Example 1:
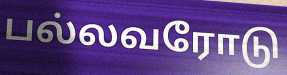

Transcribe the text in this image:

பல்லவரோடு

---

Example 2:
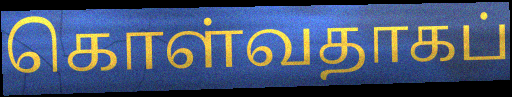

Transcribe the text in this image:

கொள்வதாகப்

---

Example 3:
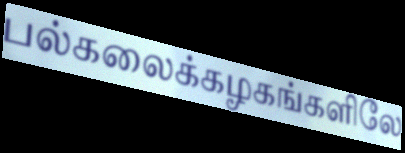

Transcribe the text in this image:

பல்கலைக்கழகங்களிலே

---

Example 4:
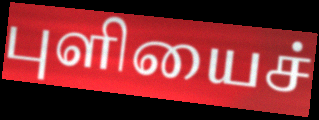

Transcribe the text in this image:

புளியைச்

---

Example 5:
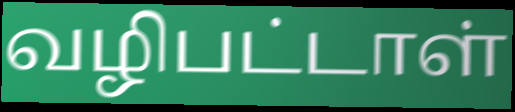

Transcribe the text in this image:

வழிபட்டாள்